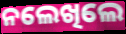
ନଲେଖିଲେ